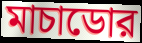
মাচাডোর